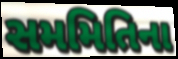
સમમિતિના